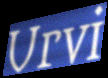
Urvi